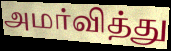
அமர்வித்து